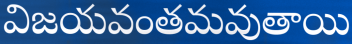
విజయవంతమవుతాయి